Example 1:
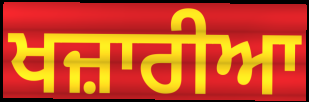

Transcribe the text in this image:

ਖਜ਼ਾਰੀਆ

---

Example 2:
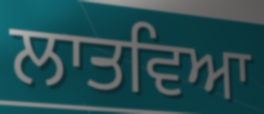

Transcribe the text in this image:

ਲਾਤਵਿਆ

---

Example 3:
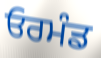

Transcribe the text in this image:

ਓਰਮੰਡ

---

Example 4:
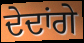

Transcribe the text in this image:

ਦੇਦਾਂਗੇ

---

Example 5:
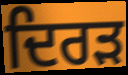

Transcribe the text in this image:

ਦਿਰੜ